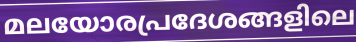
മലയോരപ്രദേശങ്ങളിലെ